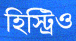
হিস্ট্রিও